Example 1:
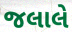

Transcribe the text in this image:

જલાલે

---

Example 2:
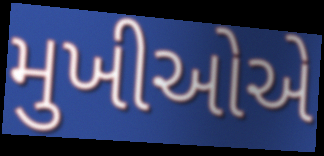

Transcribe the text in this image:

મુખીઓએ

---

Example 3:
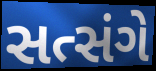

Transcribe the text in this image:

સત્સંગે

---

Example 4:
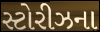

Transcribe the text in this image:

સ્ટોરીઝના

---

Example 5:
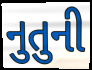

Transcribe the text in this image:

નુતુની